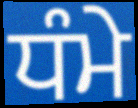
ਧੰਮੇ